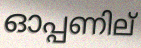
ഓപ്പണില്